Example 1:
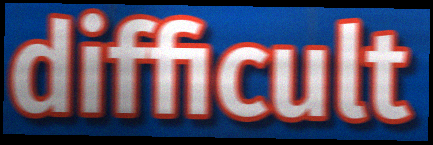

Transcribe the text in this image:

difficult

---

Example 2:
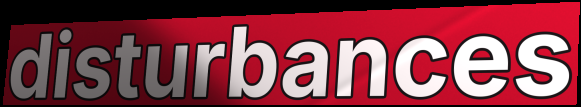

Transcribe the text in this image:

disturbances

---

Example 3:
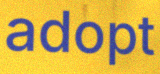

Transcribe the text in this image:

adopt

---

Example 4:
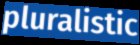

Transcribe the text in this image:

pluralistic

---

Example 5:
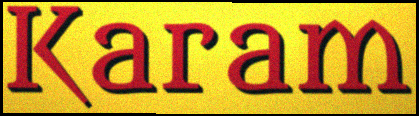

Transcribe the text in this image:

Karam